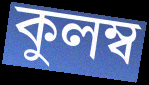
কুলম্ব